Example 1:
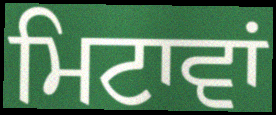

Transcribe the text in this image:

ਮਿਟਾਵਾਂ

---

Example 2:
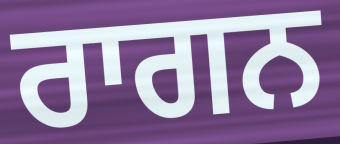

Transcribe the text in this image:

ਰਾਗਨ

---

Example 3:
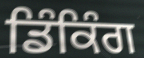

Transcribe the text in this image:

ਡਿੰਕਿੰਗ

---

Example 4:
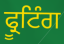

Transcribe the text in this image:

ਫ੍ਰੂਟਿੰਗ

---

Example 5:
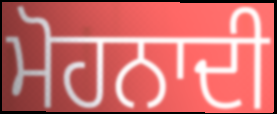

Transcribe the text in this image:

ਮੋਹਨਾਦੀ